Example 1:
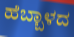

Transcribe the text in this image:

ಹೆಬ್ಬಾಳದ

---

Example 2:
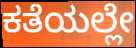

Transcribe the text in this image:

ಕತೆಯಲ್ಲೇ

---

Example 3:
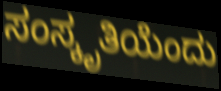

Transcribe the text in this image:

ಸಂಸ್ಕೃತಿಯೆಂದು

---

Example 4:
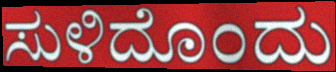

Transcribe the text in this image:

ಸುಳಿದೊಂದು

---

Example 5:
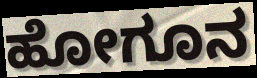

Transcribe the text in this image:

ಹೋಗೂನ